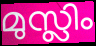
മുസ്ലിം